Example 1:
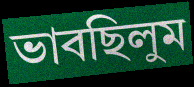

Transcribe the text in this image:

ভাবছিলুম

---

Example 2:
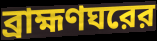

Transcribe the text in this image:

ব্রাহ্মণঘরের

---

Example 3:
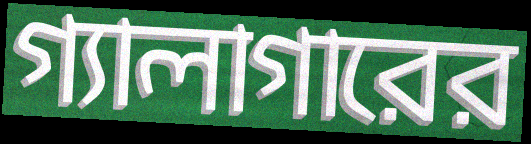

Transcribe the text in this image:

গ্যালাগারের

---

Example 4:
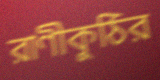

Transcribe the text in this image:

রাণীকুঠির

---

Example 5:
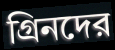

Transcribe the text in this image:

গ্রিনদের